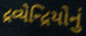
દ્રવ્યેન્દ્રિયોનું